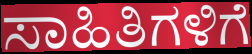
ಸಾಹಿತಿಗಳಿಗೆ